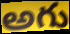
అగు